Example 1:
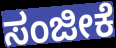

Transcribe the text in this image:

ಸಂಜೀಕೆ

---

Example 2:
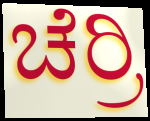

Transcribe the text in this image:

ಚೆರ‍್ರಿ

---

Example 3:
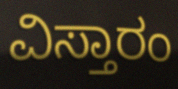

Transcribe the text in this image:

ವಿಸ್ತಾರಂ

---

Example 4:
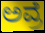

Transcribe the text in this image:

ಅವ್ರೆ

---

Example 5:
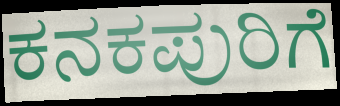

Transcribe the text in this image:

ಕನಕಪುರಿಗೆ